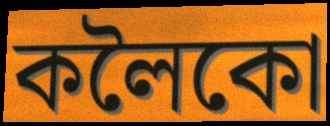
কলৈকো